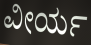
ವೀರ್ಯ